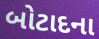
બોટાદના